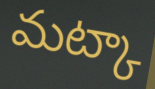
మట్కా